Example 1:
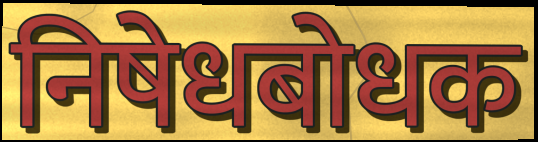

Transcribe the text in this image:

निषेधबोधक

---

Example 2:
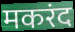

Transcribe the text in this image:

मकरंद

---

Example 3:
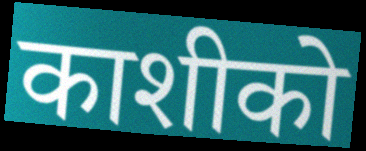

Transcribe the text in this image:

काशीको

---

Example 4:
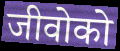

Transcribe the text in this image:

जीवोको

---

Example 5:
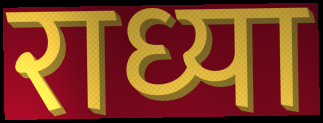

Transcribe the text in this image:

राध्या